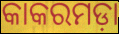
କାକରମଡ଼ା